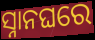
ସ୍ନାନଘରେ